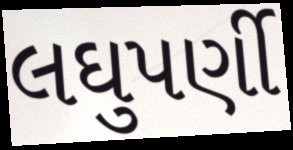
લઘુપર્ણી